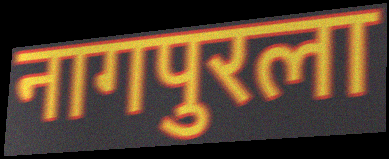
नागपुरला